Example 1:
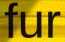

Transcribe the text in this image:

fur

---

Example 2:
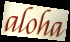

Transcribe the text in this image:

aloha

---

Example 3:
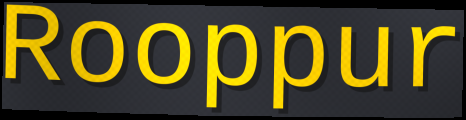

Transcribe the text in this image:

Rooppur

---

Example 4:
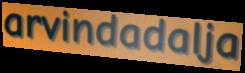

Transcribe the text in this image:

arvindadalja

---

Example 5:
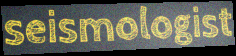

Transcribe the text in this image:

seismologist